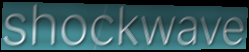
shockwave